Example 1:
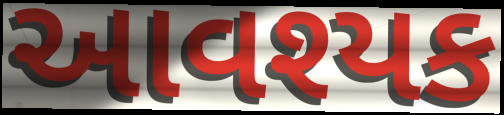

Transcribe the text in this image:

આવશ્યક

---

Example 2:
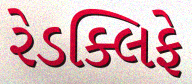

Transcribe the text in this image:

રેડક્લિફે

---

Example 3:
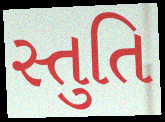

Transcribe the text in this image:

સ્તુતિ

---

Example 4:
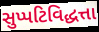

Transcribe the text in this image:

સુપ્પટિવિદ્ધત્તા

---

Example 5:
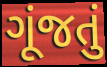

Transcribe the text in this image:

ગૂંજતું